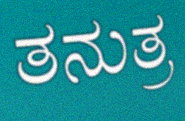
ತನುತ್ರ